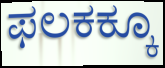
ಫಲಕಕ್ಕೂ